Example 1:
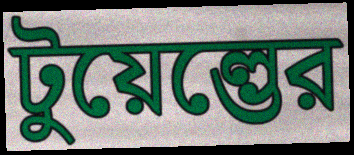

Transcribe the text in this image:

টুয়েল্ভের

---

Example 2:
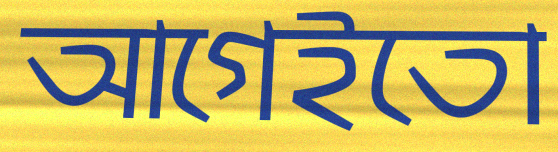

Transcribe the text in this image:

আগেইতো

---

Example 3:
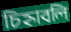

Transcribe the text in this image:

চিহ্নাবলি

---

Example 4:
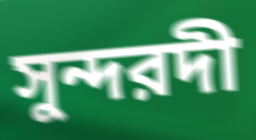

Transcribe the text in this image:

সুন্দরদী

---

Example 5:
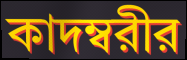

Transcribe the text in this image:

কাদম্বরীর